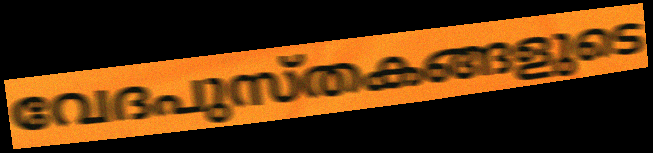
വേദപുസ്തകങ്ങളുടെ